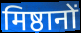
मिष्ठानों